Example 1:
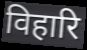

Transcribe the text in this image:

विहारि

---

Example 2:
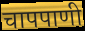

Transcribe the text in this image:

चापपाणी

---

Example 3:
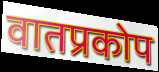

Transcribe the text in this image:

वातप्रकोप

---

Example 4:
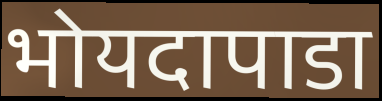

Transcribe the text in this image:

भोयदापाडा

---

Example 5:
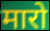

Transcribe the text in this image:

मारो